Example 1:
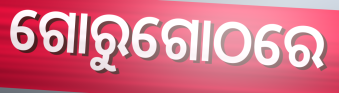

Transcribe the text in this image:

ଗୋରୁଗୋଠରେ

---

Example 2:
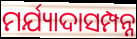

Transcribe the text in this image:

ମର୍ଯ୍ୟାଦାସମ୍ପନ୍ନ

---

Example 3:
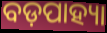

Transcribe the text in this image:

ବଡ଼ପାହ୍ୟା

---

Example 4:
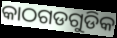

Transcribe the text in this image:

କାଠଗଡଗୁଡିକ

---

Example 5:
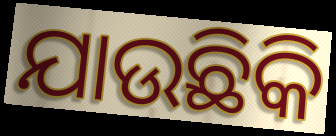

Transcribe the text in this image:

ଯାଉଛିକି